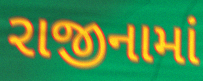
રાજીનામાં